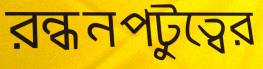
রন্ধনপটুত্বের